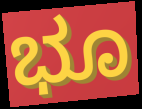
ಭೂ